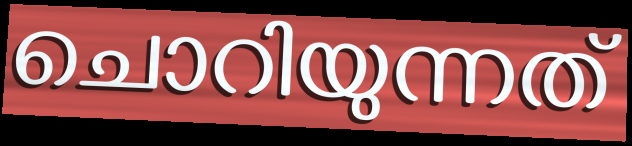
ചൊറിയുന്നത്